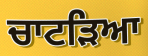
ਚਾਟੜਿਆ